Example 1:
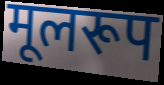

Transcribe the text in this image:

मूलरूप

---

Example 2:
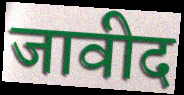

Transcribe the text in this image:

जावीद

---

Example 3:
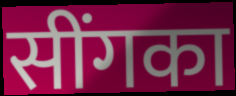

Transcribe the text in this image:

सींगका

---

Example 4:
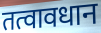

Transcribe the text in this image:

तत्‍वावधान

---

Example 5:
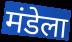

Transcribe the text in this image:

मंडेला